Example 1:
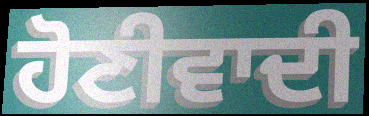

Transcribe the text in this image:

ਹੋਣੀਵਾਦੀ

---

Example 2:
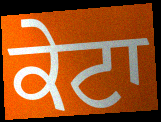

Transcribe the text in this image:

ਕੇਟਾ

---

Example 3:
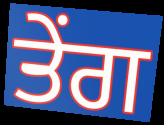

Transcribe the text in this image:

ਤੇਂਗ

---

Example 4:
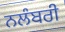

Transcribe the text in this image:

ਨਲੰਬਰੀ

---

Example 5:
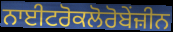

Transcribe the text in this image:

ਨਾਈਟਰੋਕਲੋਰੋਬੇਂਜ਼ੀਨ